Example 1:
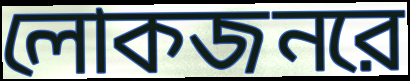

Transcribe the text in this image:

লোকজনরে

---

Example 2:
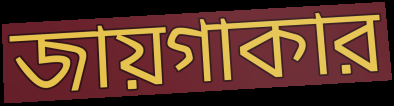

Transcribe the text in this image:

জায়গাকার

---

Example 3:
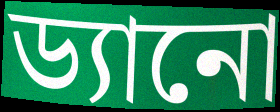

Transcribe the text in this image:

ড্যানো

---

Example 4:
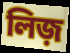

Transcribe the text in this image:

লিজ়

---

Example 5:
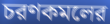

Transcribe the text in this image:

চরণকমলের